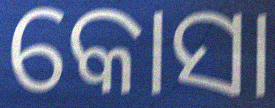
କୋସା